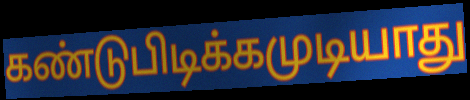
கண்டுபிடிக்கமுடியாது